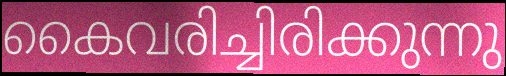
കൈവരിച്ചിരിക്കുന്നു